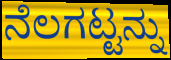
ನೆಲಗಟ್ಟನ್ನು